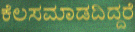
ಕೆಲಸಮಾಡದಿದ್ದರೆ